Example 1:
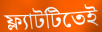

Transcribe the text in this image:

ফ্ল্যাটটিতেই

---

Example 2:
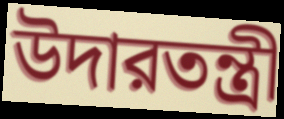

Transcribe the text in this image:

উদারতন্ত্রী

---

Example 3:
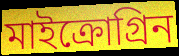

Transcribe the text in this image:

মাইক্রোগ্রিন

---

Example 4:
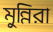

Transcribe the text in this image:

মুন্নিরা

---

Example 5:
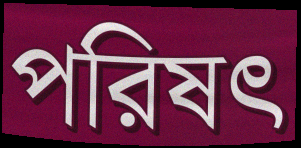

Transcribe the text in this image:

পরিষৎ